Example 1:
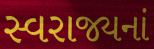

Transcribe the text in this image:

સ્વરાજ્યનાં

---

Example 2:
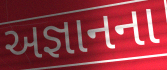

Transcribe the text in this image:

અજ્ઞાનના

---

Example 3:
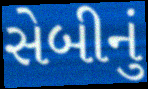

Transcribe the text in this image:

સેબીનું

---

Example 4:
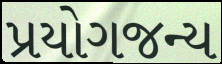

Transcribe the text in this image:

પ્રયોગજન્ય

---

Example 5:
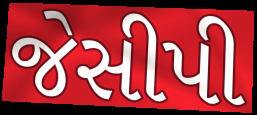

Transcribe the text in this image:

જેસીપી